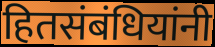
हितसंबंधियांनी